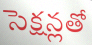
సెక్షన్లతో